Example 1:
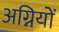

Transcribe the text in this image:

अग्नियों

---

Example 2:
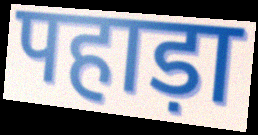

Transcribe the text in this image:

पहाड़ा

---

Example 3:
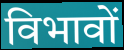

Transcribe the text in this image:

विभावों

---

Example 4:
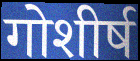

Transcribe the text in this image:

गोशीर्ष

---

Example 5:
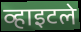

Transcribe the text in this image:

व्हाइटले